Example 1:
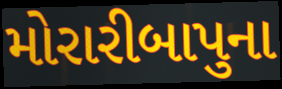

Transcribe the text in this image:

મોરારીબાપુના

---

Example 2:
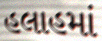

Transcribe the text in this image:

હલાહમાં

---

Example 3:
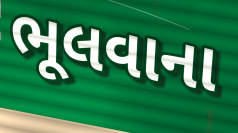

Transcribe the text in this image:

ભૂલવાના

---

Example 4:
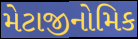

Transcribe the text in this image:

મેટાજીનોમિક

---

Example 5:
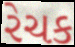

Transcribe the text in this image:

રેચક